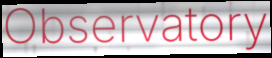
Observatory